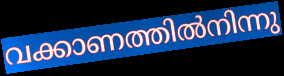
വക്കാണത്തിൽനിന്നു